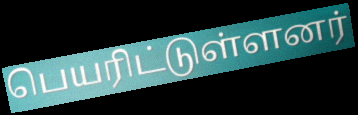
பெயரிட்டுள்ளனர்